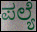
ಪಲ್ಯೆ